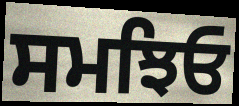
ਸਮਝਿਓ